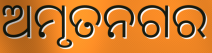
ଅମୃତନଗର